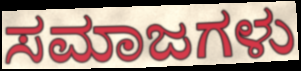
ಸಮಾಜಗಳು